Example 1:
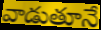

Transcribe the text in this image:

వాడుతూనే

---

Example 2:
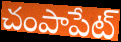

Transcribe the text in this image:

చంపాపేట్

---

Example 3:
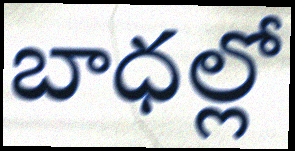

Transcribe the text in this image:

బాధల్లో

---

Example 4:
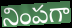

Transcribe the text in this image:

నింపగా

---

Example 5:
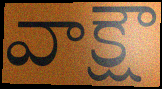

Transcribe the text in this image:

వాక్షౌ